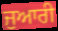
ਜੁਆਰੀ